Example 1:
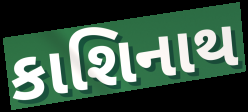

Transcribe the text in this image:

કાશિનાથ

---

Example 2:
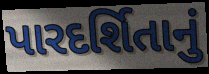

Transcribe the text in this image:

પારદર્શિતાનું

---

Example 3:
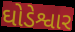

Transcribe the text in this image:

ઘોડેશ્વાર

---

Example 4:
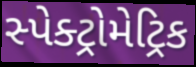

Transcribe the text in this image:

સ્પેક્ટ્રોમેટ્રિક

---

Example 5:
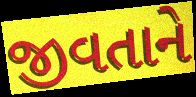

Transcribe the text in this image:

જીવતાને